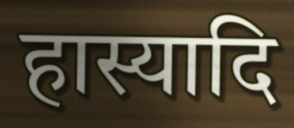
हास्यादि